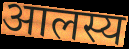
आलस्य